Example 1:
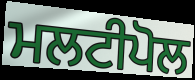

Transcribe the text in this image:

ਮਲਟੀਪੋਲ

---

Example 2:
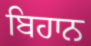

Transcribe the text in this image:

ਬਿਹਾਨ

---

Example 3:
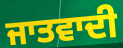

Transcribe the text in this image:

ਜਾਤਵਾਦੀ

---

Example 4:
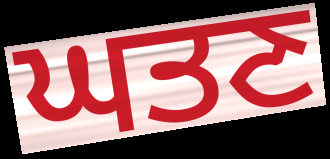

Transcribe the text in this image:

ਘਤਣ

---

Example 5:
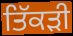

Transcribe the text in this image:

ਤਿੱਕੜੀ